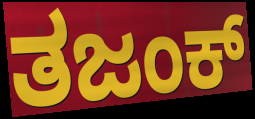
ತಜಂಕ್